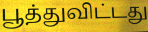
பூத்துவிட்டது